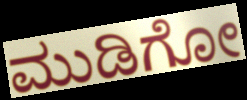
ಮುಡಿಗೋ